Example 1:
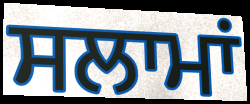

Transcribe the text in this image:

ਸਲਾਮਾਂ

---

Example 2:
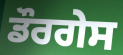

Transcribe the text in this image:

ਡੌਰਗੇਸ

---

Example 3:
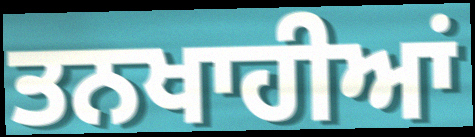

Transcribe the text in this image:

ਤਨਖਾਹੀਆਂ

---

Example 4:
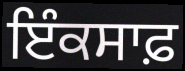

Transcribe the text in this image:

ਇੰਕਸਾਫ਼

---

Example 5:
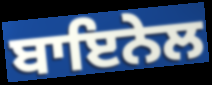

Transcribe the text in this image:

ਬਾਇਨੇਲ